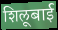
शिलूबाई